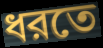
ধরতে